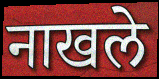
नाखले